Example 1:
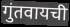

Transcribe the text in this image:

गुंतवायची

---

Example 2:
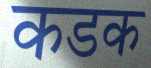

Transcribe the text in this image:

कडक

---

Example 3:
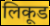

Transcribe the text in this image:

लिकूड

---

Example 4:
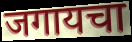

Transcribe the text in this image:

जगायचा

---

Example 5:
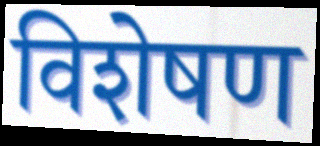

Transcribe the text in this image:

विशेषण